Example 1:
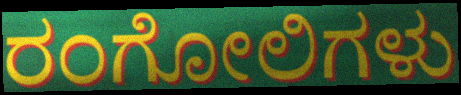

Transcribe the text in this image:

ರಂಗೋಲಿಗಳು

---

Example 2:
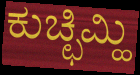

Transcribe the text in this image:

ಕುಚ್ಛಿಮ್ಹಿ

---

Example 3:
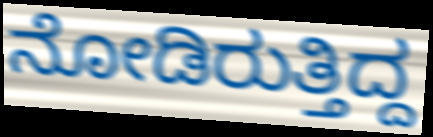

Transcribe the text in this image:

ನೋಡಿರುತ್ತಿದ್ದ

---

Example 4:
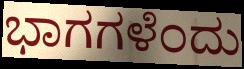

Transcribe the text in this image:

ಭಾಗಗಳೆಂದು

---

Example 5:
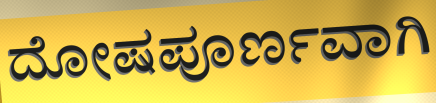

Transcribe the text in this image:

ದೋಷಪೂರ್ಣವಾಗಿ